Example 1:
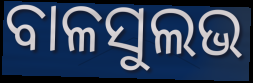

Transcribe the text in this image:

ବାଳସୁଲଭ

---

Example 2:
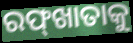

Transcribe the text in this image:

ରଫ୍‌ଖାତାକୁ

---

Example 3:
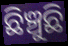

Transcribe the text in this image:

ଛିଞ୍ଚୁଛି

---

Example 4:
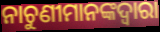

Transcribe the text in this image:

ନାଚୁଣୀମାନଙ୍କଦ୍ୱାରା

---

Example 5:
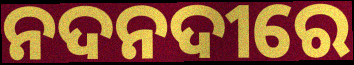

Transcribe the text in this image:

ନଦନଦୀରେ